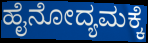
ಹೈನೋದ್ಯಮಕ್ಕೆ